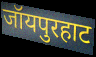
जॉयपुरहाट